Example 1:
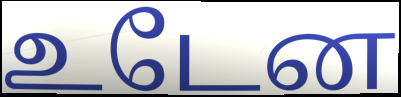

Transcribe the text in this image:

உடேன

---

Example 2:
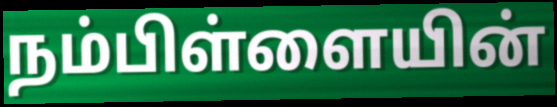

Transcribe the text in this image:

நம்பிள்ளையின்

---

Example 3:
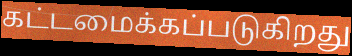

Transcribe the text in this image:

கட்டமைக்கப்படுகிறது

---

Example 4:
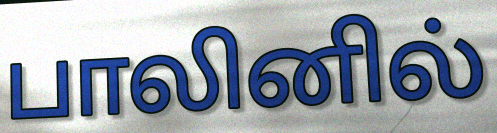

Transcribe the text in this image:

பாலினில்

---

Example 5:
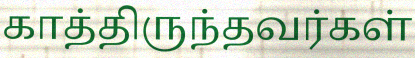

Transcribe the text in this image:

காத்திருந்தவர்கள்